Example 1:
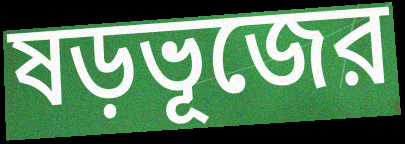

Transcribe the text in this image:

ষড়ভূজের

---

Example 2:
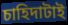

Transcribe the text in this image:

চাহিদাটাই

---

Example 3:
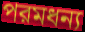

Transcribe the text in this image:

পরমধন্য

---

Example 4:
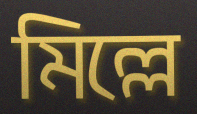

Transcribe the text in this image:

মিল্লে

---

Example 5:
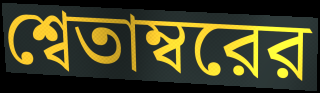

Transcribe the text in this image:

শ্বেতাম্বরের